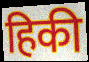
हिकी